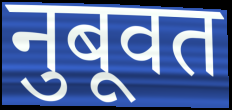
नुबूवत